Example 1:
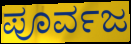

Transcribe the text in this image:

ಪೂರ್ವಜ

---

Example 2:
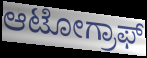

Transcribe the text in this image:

ಆಟೋಗ್ರಾಫ್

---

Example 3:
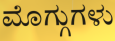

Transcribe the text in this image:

ಮೊಗ್ಗುಗಳು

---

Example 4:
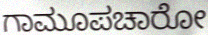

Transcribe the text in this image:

ಗಾಮೂಪಚಾರೋ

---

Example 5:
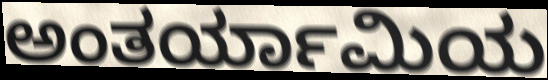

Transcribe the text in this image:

ಅಂತರ್ಯಾಮಿಯ